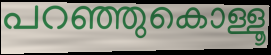
പറഞ്ഞുകൊള്ളൂ